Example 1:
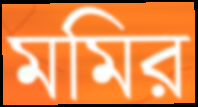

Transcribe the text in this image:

মমির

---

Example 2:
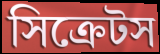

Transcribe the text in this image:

সিক্রেটস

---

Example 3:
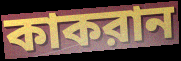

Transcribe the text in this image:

কাকরান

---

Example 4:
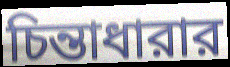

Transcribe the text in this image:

চিন্তাধারার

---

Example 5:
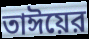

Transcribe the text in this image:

তাঈয়ের